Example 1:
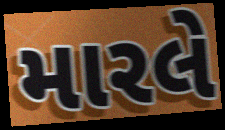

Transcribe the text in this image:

મારલે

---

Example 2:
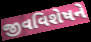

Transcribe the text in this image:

જીવવિશેષને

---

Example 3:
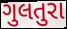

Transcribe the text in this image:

ગુલતુરા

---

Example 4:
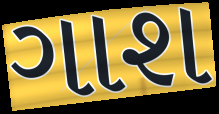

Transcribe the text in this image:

ગાશ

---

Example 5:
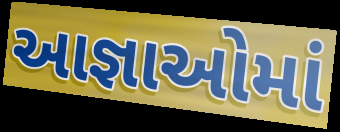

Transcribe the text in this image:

આજ્ઞાઓમાં